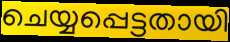
ചെയ്യപ്പെട്ടതായി